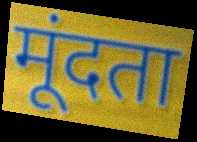
मूंदता